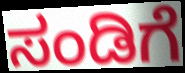
ಸಂಡಿಗೆ